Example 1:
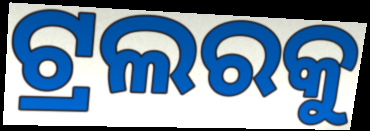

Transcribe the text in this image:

ଟ୍ରଲରକୁ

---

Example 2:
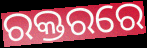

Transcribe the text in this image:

ରକ୍ତରରେ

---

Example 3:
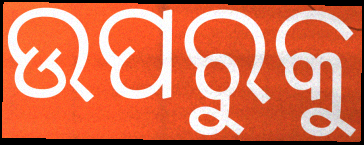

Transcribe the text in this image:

ଉପରୁକୁ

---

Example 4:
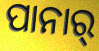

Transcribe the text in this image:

ପାନାର୍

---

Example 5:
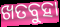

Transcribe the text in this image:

ଖତବୁହା